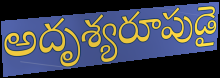
అదృశ్యరూపుడై